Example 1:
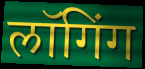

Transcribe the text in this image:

लॉगिंग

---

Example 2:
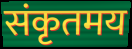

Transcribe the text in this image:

संकृतमय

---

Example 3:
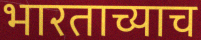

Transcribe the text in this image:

भारताच्याच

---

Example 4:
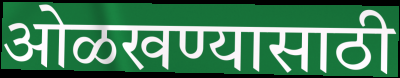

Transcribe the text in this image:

ओळखण्यासाठी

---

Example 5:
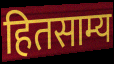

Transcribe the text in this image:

हितसाम्य